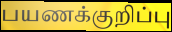
பயணக்குறிப்பு